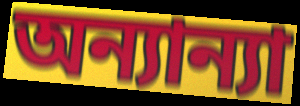
অন্যান্যা